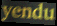
yendu